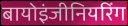
बायोइंजीनियरिंग